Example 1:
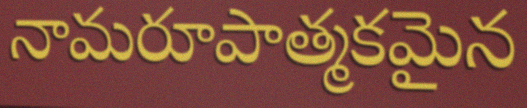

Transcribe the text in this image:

నామరూపాత్మకమైన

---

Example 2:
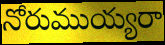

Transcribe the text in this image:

నోరుముయ్యరా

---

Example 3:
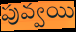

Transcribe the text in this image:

పువ్వయి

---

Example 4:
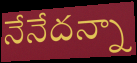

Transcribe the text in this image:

నేనేదన్నా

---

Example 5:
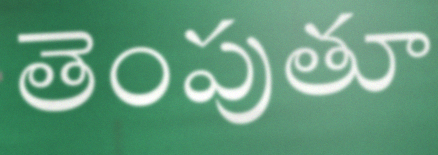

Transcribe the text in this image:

తెంపుతూ